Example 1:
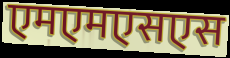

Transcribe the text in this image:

एमएमएसएस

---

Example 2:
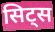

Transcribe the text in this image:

सिट्स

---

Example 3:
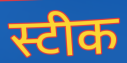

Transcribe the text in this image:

स्टीक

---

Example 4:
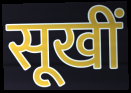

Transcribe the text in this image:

सूखीं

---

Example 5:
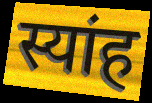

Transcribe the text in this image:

स्यांह